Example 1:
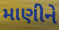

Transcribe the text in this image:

માણીને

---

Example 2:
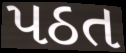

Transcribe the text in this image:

પઠત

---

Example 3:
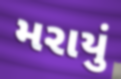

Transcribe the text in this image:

મરાયું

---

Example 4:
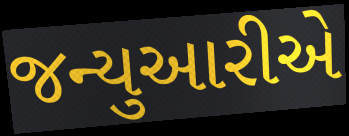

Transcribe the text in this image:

જન્યુઆરીએ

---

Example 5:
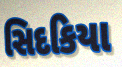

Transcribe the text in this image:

સિદકિયા